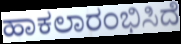
ಹಾಕಲಾರಂಭಿಸಿದೆ